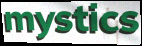
mystics